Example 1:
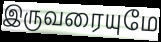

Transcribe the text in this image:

இருவரையுமே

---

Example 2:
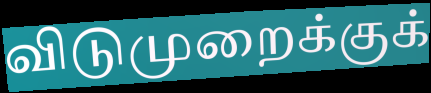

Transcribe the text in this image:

விடுமுறைக்குக்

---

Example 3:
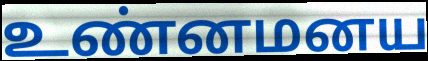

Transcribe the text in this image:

உண்னமனய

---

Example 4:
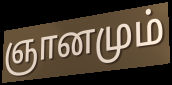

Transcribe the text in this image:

ஞானமும்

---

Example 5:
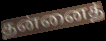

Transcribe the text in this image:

தன்னைத்